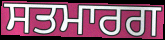
ਸਤਮਾਰਗ